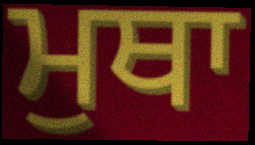
ਮੁਥਾ